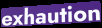
exhaution